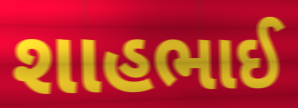
શાહભાઈ